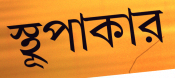
স্থূপাকার